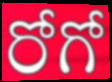
రోగో